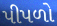
પીપળો